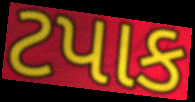
ટપાક